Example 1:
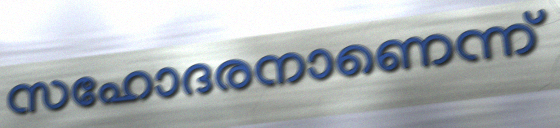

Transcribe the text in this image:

സഹോദരനാണെന്ന്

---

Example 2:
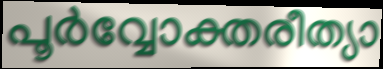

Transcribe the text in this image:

പൂർവ്വോക്തരീത്യാ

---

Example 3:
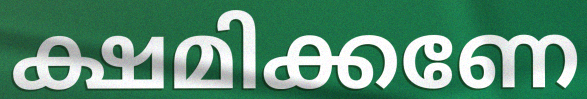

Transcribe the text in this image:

ക്ഷമിക്കണേ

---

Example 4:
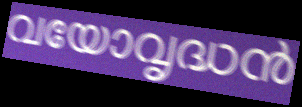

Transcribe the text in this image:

വയോവൃദ്ധൻ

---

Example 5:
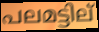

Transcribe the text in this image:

പലമട്ടില്